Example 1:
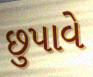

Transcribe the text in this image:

છુપાવે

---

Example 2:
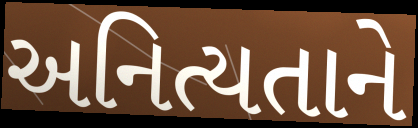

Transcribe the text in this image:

અનિત્યતાને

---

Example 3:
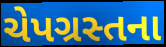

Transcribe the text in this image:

ચેપગ્રસ્તના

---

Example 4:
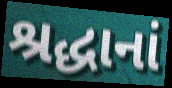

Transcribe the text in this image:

શ્રદ્ધાનાં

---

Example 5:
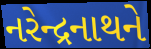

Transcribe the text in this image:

નરેન્દ્રનાથને